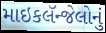
માઇકલૅન્જેલોનું